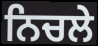
ਨਿਚਲੇ